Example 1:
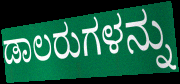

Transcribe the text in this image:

ಡಾಲರುಗಳನ್ನು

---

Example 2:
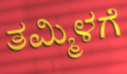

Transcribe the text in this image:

ತಮ್ಮಿಳಗೆ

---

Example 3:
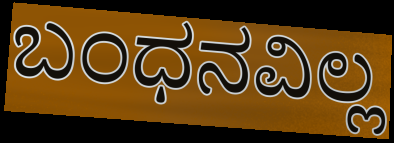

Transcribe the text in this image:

ಬಂಧನವಿಲ್ಲ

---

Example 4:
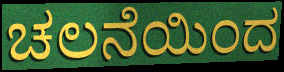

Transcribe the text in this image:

ಚಲನೆಯಿಂದ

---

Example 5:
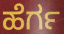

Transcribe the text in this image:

ಹೆರ್ಗ